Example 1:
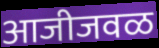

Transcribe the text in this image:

आजीजवळ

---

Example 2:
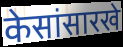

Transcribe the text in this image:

केसांसारखे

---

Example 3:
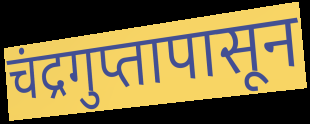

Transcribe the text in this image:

चंद्रगुप्तापासून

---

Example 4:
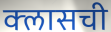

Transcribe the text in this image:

क्‍लासची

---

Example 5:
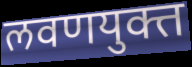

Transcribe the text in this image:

लवणयुक्त